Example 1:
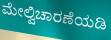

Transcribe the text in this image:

ಮೇಲ್ವಿಚಾರಣೆಯಡಿ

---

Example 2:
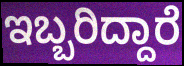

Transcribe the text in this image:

ಇಬ್ಬರಿದ್ದಾರೆ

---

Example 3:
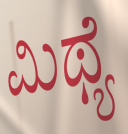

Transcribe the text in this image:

ಮಿಥ್ಯೆ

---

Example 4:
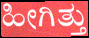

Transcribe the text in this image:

ಹೀಗಿತ್ತು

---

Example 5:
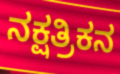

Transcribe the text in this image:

ನಕ್ಷತ್ರಿಕನ